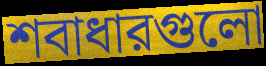
শবাধারগুলো